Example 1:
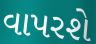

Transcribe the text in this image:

વાપરશે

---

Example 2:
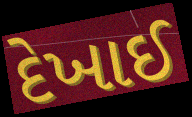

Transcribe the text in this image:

દેખાઈ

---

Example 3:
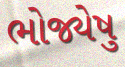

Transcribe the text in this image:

ભોજ્યેષુ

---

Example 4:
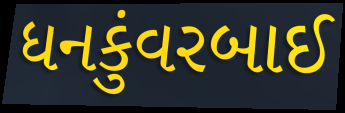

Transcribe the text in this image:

ધનકુંવરબાઈ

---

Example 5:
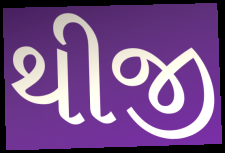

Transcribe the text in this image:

થીજી